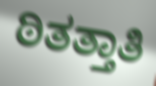
ಠಿತತ್ತಾತಿ